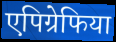
एपिग्रेफिया